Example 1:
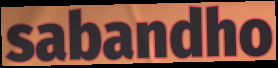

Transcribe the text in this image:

sabandho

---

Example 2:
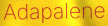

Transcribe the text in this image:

Adapalene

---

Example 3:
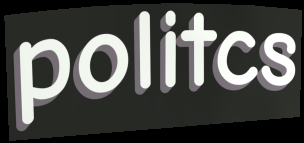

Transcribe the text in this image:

politcs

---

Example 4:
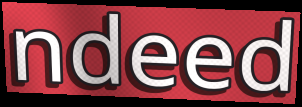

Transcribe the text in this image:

ndeed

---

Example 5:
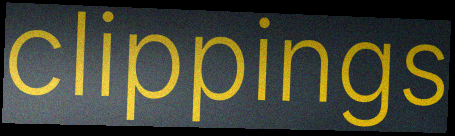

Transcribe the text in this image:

clippings